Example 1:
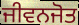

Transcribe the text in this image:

ਜੀਵਨਜੋਤ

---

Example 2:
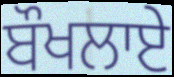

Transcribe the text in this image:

ਬੌਖਲਾਏ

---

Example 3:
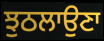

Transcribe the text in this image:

ਝੁਠਲਾਉਣਾ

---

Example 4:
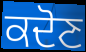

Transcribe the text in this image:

ਕਦੋਣ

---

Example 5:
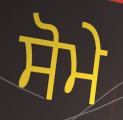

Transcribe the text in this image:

ਸੋਮੇ